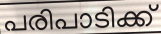
പരിപാടിക്ക്